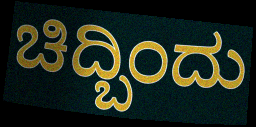
ಚಿದ್ಬಿಂದು